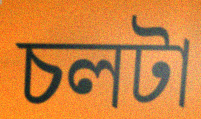
চলটা